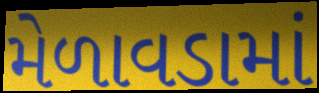
મેળાવડામાં